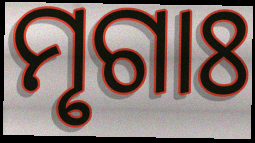
ମୃଗାଃ